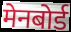
मेनबोर्ड